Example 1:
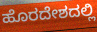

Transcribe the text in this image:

ಹೊರದೇಶದಲ್ಲಿ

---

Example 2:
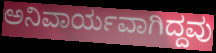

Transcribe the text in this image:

ಅನಿವಾರ್ಯವಾಗಿದ್ದವು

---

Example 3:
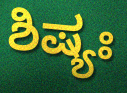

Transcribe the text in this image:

ಶಿಷ್ಯಃ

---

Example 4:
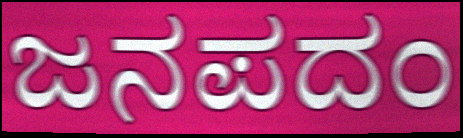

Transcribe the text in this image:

ಜನಪದಂ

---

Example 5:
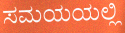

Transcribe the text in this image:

ಸಮಯಯಲ್ಲಿ